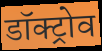
डॉक्ट्रोव